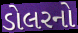
ડોલરનો